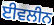
ਈਵਲੀਨ